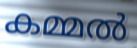
കമ്മൽ